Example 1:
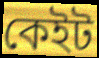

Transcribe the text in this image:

কেইট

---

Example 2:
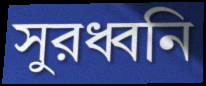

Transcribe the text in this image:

সুরধ্বনি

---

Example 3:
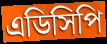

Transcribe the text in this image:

এডিসিপি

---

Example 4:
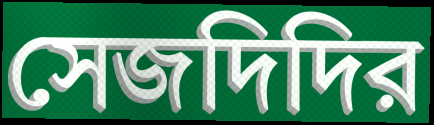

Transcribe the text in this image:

সেজদিদির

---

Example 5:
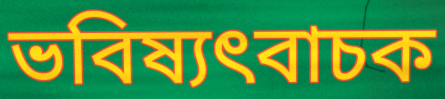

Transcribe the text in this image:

ভবিষ্যৎবাচক